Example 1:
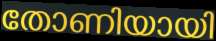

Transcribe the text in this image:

തോണിയായി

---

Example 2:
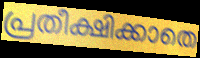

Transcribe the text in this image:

പ്രതീക്ഷിക്കാതെ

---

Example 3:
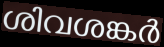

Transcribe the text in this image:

ശിവശങ്കർ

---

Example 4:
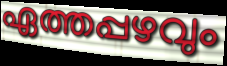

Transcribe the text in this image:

ഏത്തപ്പഴവും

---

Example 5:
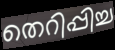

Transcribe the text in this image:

തെറിപ്പിച്ച